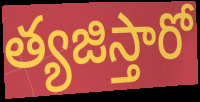
త్యజిస్తారో